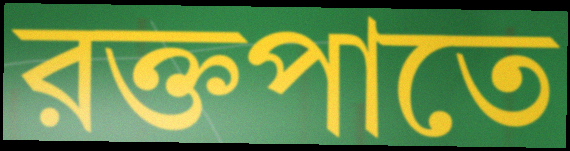
রক্তপাতে